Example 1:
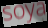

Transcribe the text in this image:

soya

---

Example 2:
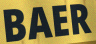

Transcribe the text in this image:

BAER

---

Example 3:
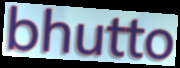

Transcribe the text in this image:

bhutto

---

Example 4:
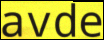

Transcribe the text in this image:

avde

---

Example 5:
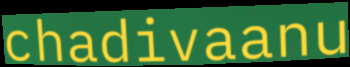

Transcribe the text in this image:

chadivaanu